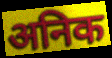
अनिक